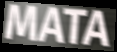
MATA